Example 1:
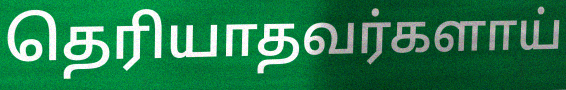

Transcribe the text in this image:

தெரியாதவர்களாய்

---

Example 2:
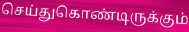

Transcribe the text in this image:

செய்துகொண்டிருக்கும்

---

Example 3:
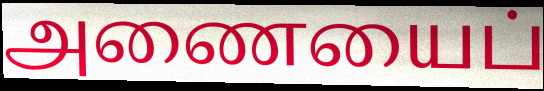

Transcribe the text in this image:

அணையைப்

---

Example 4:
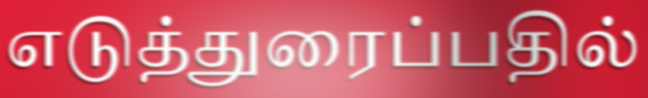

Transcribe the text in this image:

எடுத்துரைப்பதில்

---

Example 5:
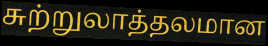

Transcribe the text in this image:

சுற்றுலாத்தலமான